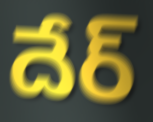
దేర్